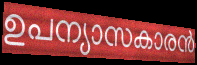
ഉപന്യാസകാരൻ